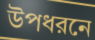
উপধরনে